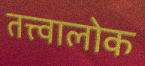
तत्त्वालोक